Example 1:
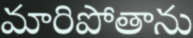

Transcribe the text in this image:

మారిపోతాను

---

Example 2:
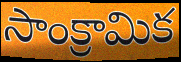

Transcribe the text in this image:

సాంక్రామిక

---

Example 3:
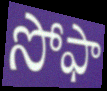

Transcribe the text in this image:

సోఫా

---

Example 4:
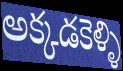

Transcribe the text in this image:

అక్కడకెళ్ళి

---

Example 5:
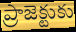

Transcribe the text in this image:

ప్రాజెక్టుకు